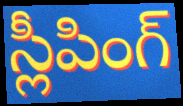
స్లీపింగ్